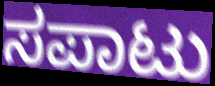
ಸಪಾಟು